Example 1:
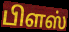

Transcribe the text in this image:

பிளஸ்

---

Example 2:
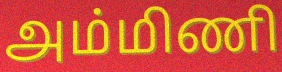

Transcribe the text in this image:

அம்மிணி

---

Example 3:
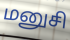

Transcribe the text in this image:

மனுசி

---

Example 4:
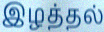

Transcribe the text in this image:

இழத்தல்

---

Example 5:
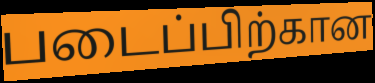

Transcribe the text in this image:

படைப்பிற்கான